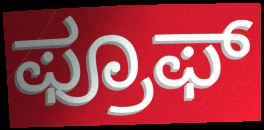
ಫ್ರೂಫ್